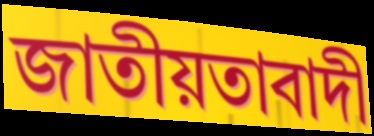
জাতীয়তাবাদী